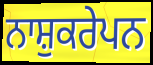
ਨਾਸ਼ੁਕਰੇਪਨ